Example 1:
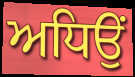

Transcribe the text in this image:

ਅਧਿਉਂ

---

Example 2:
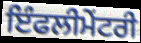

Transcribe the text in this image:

ਇੰਫਲੀਮੇਂਟਰੀ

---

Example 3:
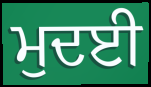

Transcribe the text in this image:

ਮੁਦਈ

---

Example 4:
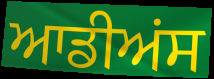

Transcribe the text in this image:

ਆਡੀਅਂਸ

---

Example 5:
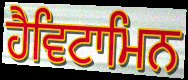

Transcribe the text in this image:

ਹੈਵਿਟਾਮਿਨ